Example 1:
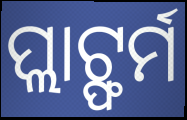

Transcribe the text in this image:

ପ୍ଲାଟ୍ଫର୍ମ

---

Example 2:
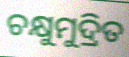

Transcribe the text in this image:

ଚକ୍ଷୁମୁଦ୍ରିତ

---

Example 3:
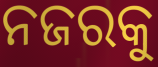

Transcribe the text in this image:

ନଜରକୁ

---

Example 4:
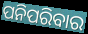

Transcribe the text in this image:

ପନିପରିବାର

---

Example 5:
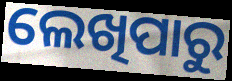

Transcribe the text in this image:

ଲେଖିପାରୁ